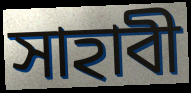
সাহাবী